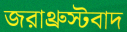
জরাথ্রুস্টবাদ